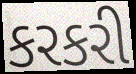
કરકરી